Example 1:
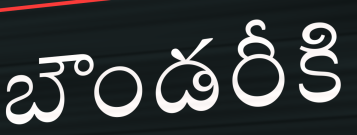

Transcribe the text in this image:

బౌండరీకి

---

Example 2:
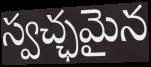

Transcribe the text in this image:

స్వచ్ఛమైన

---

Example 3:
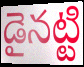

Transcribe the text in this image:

డైనట్టి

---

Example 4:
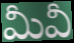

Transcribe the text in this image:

మీవీ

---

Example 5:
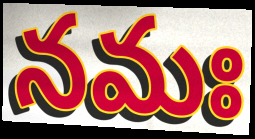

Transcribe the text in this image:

నమః